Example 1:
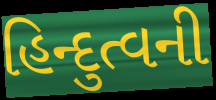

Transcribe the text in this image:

હિન્દુત્વની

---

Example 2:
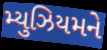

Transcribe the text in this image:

મ્યુઝિયમને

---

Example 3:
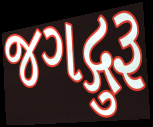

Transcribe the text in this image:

જગદ્ગુરૂ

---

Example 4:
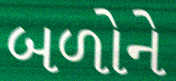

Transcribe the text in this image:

બળોને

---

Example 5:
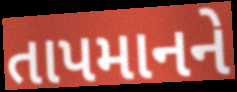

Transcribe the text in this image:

તાપમાનને